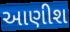
આણીશ